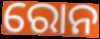
ରୋନ